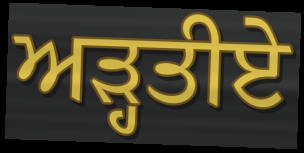
ਅੜ੍ਹਤੀਏ